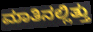
ಮಾತಿನಲ್ಲಿತ್ತು